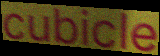
cubicle